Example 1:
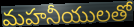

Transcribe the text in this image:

మహనీయులతో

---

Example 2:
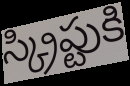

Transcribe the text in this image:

స్క్రిప్టుకి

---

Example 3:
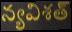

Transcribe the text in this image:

న్యవిశత్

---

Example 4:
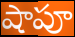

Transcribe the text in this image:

షాపూ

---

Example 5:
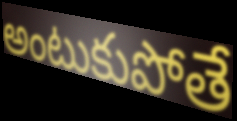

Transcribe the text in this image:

అంటుకుపోతే